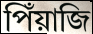
পিঁয়াজি